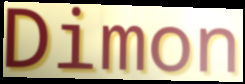
Dimon